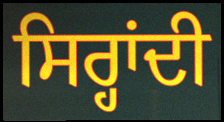
ਸਿਰ੍ਹਾਂਦੀ